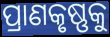
ପ୍ରାଣକୃଷ୍ଣକୁ